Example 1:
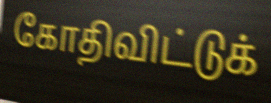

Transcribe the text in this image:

கோதிவிட்டுக்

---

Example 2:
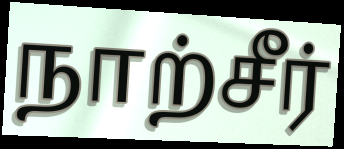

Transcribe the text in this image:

நாற்சீர்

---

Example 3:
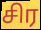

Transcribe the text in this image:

சிர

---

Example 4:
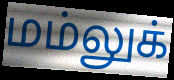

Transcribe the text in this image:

மம்லுக்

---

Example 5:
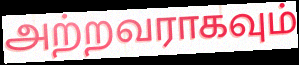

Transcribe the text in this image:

அற்றவராகவும்